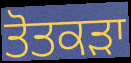
ਤੋਤਕੜਾ